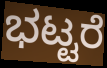
ಭಟ್ಟರೆ